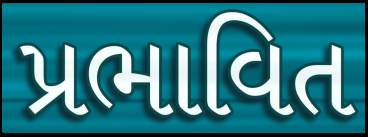
પ્રભાવિત